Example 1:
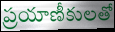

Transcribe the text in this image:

ప్రయాణీకులతో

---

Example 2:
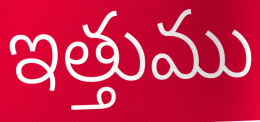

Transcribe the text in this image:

ఇత్తుము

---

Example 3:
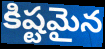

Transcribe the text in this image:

కిష్టమైన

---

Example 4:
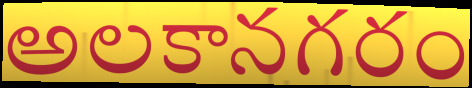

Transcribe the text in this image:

అలకానగరం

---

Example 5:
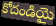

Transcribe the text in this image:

కోదండియై